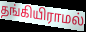
தங்கியிராமல்